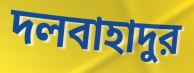
দলবাহাদুর